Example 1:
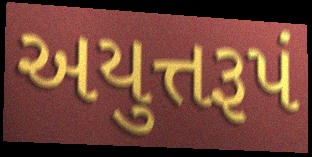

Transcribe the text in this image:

અયુત્તરૂપં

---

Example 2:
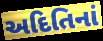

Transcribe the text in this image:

અદિતિનાં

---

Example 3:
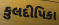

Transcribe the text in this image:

કુલદીપિકા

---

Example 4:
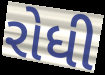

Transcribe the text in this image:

રોધી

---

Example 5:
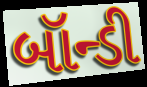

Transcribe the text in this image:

બૉન્ડી